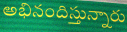
అభినందిస్తున్నారు